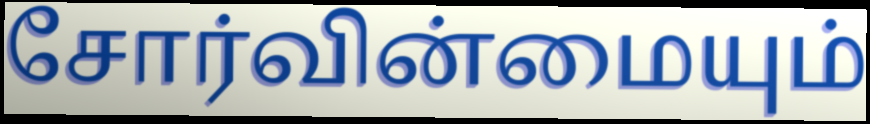
சோர்வின்மையும்